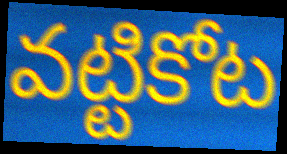
వట్టికోట